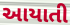
આયાતી